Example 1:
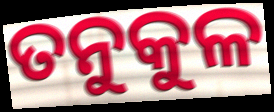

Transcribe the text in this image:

ତନୁକୁଳ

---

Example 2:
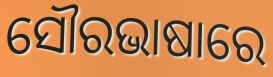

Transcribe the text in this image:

ସୌରଭାଷାରେ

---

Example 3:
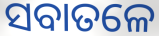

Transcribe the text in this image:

ସବାତଳେ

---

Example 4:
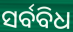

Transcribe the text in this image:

ସର୍ବବିଧ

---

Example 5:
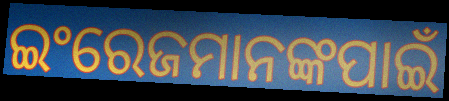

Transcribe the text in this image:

ଇଂରେଜମାନଙ୍କପାଇଁ